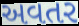
અવતર